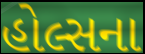
હોલ્સના